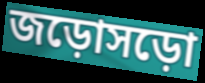
জড়োসড়ো